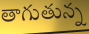
తాగుతున్న